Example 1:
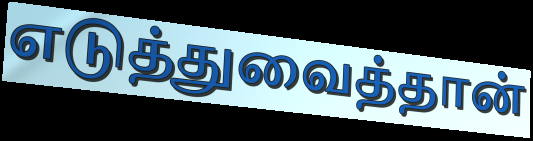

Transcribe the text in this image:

எடுத்துவைத்தான்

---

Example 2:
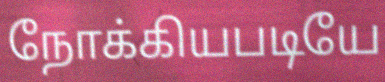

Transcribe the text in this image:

நோக்கியபடியே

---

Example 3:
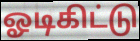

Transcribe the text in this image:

ஓடிகிட்டு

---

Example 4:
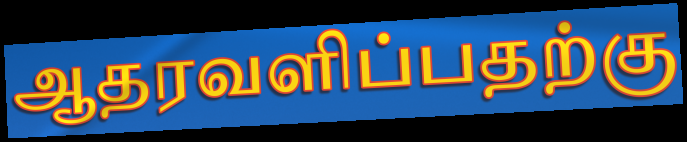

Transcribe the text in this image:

ஆதரவளிப்பதற்கு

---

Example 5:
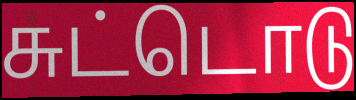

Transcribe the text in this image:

சுட்டொடு